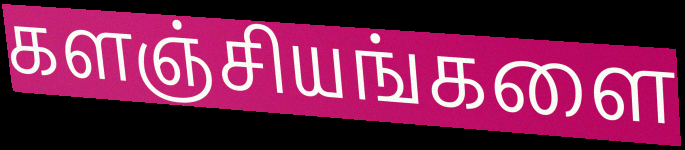
களஞ்சியங்களை